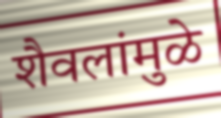
शैवलांमुळे